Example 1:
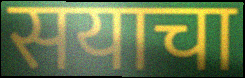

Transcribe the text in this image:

सयाचा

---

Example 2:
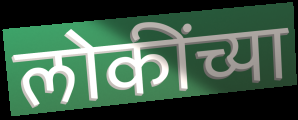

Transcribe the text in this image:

लोकींच्या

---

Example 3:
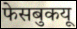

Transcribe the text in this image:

फेसबुकयू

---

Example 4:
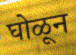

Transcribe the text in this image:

घोळून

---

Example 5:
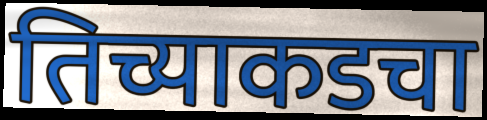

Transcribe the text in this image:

तिच्याकडचा